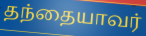
தந்தையாவர்